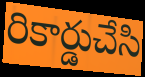
రికార్డుచేసి